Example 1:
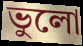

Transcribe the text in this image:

ভুলো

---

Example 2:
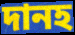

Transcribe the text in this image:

দানহ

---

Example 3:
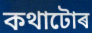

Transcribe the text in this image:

কথাটোৰ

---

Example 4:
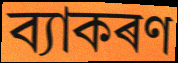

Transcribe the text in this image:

ব্যাকৰণ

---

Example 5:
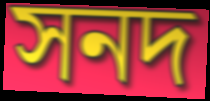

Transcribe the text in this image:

সনদ